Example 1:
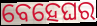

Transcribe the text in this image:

ବେହେଘର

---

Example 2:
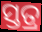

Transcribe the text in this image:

ସ୍ତତ୍ର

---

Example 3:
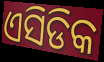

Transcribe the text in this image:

ଏସିଡିକ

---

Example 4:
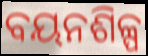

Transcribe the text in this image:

ବୟନଶିଳ୍ପ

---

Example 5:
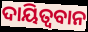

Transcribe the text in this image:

ଦାୟିତ୍ବବାନ